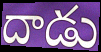
దాడు